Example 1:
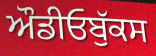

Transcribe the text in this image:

ਔਡੀਓਬੁੱਕਸ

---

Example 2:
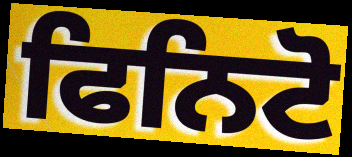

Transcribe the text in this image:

ਫਿਨਿਟੋ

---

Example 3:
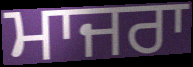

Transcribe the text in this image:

ਮਾਜਰਾ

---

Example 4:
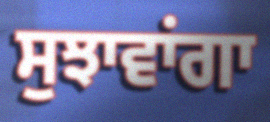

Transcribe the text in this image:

ਸੁਝਾਵਾਂਗਾ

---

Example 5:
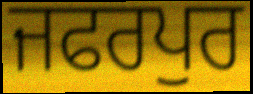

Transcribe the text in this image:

ਜਫਰਪੁਰ